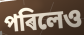
পৰিলেও